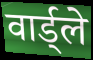
वार्ड्ले